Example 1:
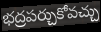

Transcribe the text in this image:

భద్రపర్చుకోవచ్చు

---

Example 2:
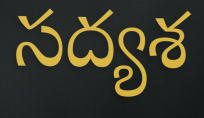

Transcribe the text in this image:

సద్యశ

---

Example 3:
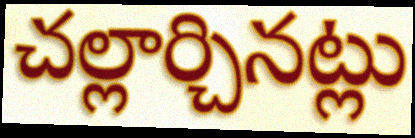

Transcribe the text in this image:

చల్లార్చినట్లు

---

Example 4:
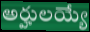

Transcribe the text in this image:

అర్హులయ్యే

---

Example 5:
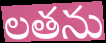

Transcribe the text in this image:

లతను